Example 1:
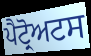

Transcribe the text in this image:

ਪੈਟ੍ਰੋਅਟਸ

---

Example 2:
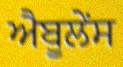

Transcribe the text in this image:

ਐਬੂਲੇਂਸ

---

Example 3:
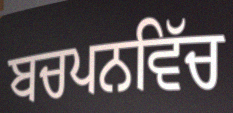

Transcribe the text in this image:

ਬਚਪਨਵਿੱਚ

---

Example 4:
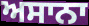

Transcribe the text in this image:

ਅਸਾਨਾ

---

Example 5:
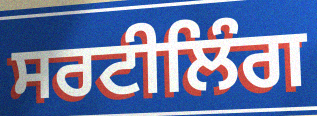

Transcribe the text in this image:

ਸਰਟੀਲਿੰਗ